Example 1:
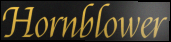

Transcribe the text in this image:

Hornblower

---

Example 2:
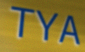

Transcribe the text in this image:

TYA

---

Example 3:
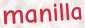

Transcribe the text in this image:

manilla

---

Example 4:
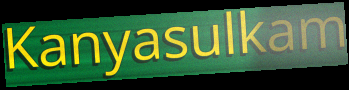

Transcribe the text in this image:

Kanyasulkam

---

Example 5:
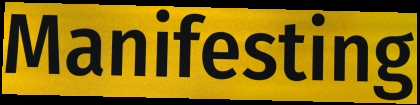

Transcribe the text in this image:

Manifesting